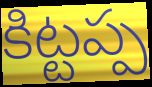
కిట్టప్ప